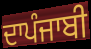
ਦਾਪੰਜਾਬੀ